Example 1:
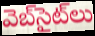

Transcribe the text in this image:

వెబ్‌సైట్‌లు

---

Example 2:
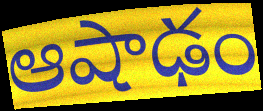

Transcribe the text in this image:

ఆషాఢం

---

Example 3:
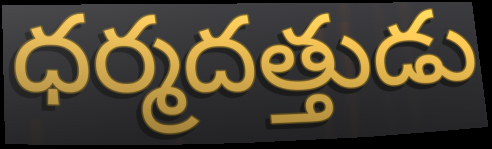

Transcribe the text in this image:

ధర్మదత్తుడు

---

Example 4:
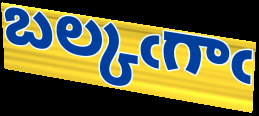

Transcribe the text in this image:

బల్కఁగాఁ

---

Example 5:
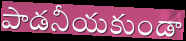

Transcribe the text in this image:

పాడనీయకుండా